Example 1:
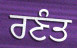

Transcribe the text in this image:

ਰਣੰਤ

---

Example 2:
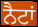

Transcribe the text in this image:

ਨੈਟਾਂ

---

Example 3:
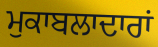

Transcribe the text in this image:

ਮੁਕਾਬਲਾਦਾਰਾਂ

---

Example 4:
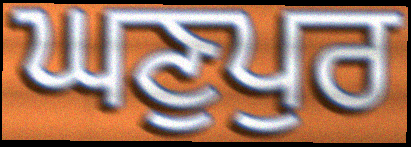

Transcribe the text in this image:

ਘਣੁਪੁਰ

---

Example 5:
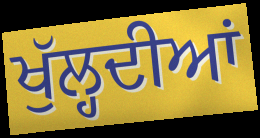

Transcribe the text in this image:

ਖੁੱਲ੍ਹਦੀਆਂ